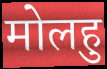
मोलहु